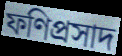
ফণিপ্রসাদ